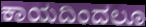
ಕಾಯದಿಂದಲೂ